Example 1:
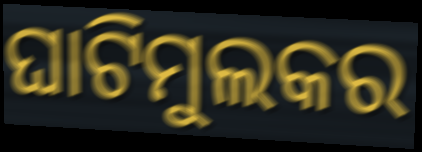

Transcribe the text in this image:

ଘାଟିମୁଲକର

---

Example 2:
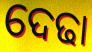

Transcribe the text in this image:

ଦେଢା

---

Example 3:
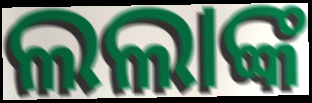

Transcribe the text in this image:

ଲଲାଙ୍କ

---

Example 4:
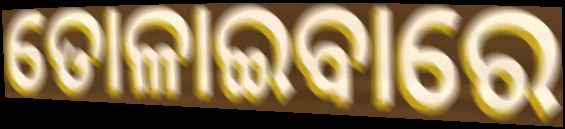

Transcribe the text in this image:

ତୋଳାଇବାରେ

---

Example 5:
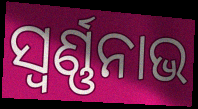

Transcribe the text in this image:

ସ୍ବର୍ଣ୍ଣନାଭ